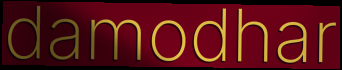
damodhar